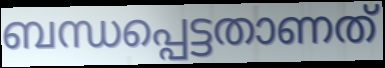
ബന്ധപ്പെട്ടതാണത്